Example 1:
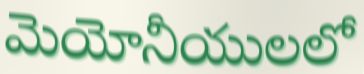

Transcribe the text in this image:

మెయోనీయులలో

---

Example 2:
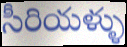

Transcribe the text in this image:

సీరియళ్ళు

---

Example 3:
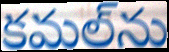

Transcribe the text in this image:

కమల్‌ను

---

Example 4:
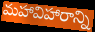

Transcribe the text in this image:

మహావిహారాన్ని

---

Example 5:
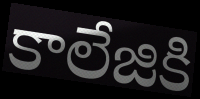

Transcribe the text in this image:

కాలేజికి